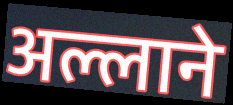
अल्लाने